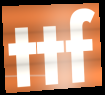
ttf